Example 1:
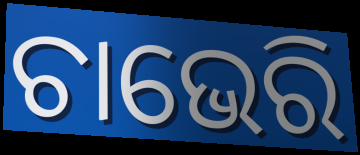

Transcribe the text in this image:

ଚାଭେରି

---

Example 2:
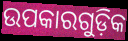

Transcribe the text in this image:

ଉପକାରଗୁଡ଼ିକ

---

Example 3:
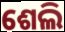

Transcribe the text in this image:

ଶେଲି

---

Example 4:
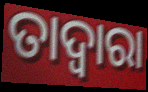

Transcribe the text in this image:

ତାଦ୍ବାରା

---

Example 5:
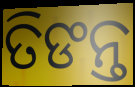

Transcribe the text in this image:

ତିଙନ୍ତ